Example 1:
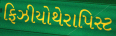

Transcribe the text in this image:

ફિઝીયોથેરાપિસ્ટ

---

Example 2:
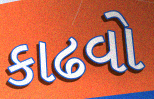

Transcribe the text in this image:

કાઢવો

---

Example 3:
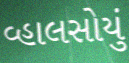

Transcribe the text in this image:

વ્હાલસોયું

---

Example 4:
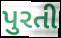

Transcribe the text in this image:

પુરતી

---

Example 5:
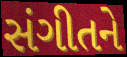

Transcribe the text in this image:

સંગીતને